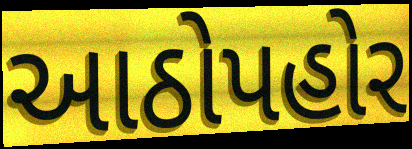
આઠોપહોર